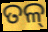
ତଳ୍